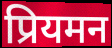
प्रियमन